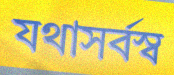
যথাসর্বস্ব